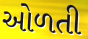
ઓળતી